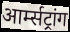
आर्म्सट्रांग